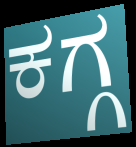
ಕಗ್ಗ